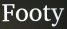
Footy